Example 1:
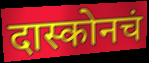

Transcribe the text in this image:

दास्कोनचं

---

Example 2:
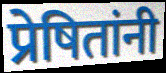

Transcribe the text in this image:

प्रेषितांनी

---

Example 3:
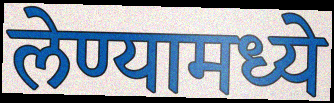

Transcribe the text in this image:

लेण्यामध्ये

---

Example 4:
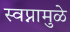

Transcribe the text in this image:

स्वप्नामुळे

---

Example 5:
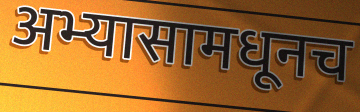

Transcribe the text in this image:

अभ्यासामधूनच